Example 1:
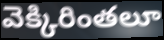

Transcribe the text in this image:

వెక్కిరింతలూ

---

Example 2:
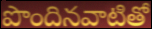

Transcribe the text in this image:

పొందినవాటితో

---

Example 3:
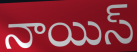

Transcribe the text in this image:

నాయిస్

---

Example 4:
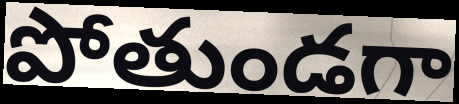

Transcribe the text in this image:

పోతుండగా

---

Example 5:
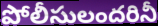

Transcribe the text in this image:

పోలీసులందరినీ